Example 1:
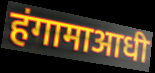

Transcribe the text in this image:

हंगामाआधी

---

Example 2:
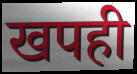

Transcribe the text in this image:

खपही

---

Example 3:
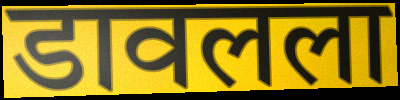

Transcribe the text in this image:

डावलला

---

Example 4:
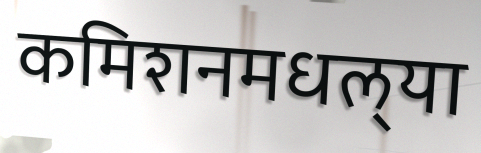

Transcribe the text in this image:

कमिशनमधल्या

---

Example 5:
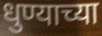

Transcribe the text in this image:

धुण्याच्या